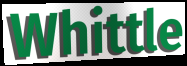
Whittle